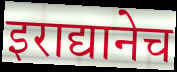
इराद्यानेच